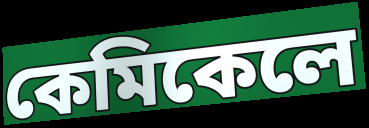
কেমিকেলে